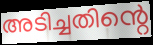
അടിച്ചതിന്റെ